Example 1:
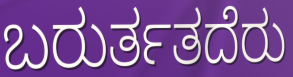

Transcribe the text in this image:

ಬರುರ್ತತದೆರು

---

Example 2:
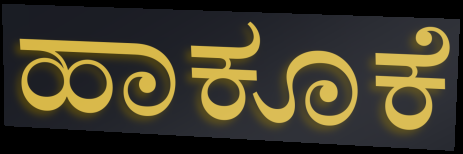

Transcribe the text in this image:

ಹಾಕೂಕೆ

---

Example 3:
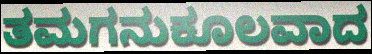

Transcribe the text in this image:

ತಮಗನುಕೂಲವಾದ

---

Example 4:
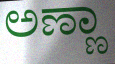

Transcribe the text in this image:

ಅಣ್ಣಾ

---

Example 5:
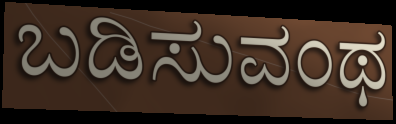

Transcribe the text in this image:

ಬಡಿಸುವಂಥ